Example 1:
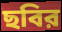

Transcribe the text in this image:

ছবির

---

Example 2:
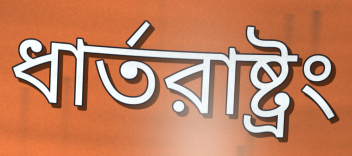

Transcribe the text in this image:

ধার্তরাষ্ট্রং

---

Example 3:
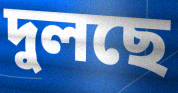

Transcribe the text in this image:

দুলছে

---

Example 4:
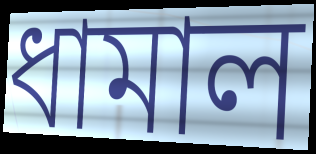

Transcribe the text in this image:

ধামাল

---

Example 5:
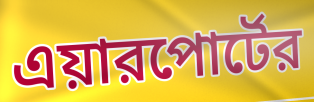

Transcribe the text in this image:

এয়ারপোর্টের